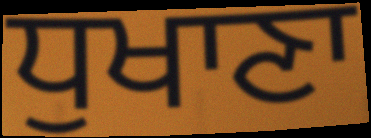
ਧੁਖਾਣਾ